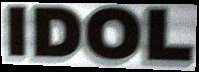
IDOL